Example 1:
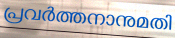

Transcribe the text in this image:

പ്രവർത്തനാനുമതി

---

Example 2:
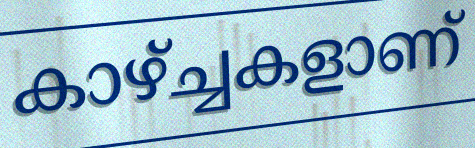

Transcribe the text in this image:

കാഴ്ച്ചകളാണ്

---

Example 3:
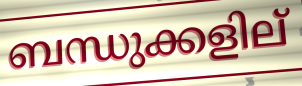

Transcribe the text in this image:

ബന്ധുക്കളില്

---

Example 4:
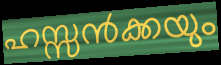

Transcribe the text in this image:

ഹസ്സൻക്കയും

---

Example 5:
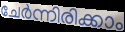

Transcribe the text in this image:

ചേർന്നിരിക്കാം